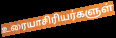
உரையாசிரியர்களுள்